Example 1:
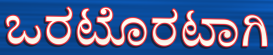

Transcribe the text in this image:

ಒರಟೊರಟಾಗಿ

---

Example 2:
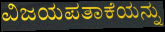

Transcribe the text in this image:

ವಿಜಯಪತಾಕೆಯನ್ನು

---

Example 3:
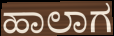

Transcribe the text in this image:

ಹಾಲಾಗ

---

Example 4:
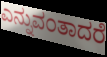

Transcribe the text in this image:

ಎನ್ನುವಂತಾದರೆ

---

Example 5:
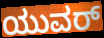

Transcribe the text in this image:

ಯುವರ್